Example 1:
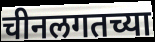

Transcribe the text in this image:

चीनलगतच्या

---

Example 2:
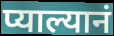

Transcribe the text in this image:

प्याल्यानं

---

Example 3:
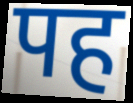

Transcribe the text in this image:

पह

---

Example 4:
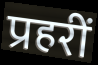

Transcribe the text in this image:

प्रहरीं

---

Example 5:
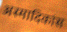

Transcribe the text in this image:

अस्मादिकांस